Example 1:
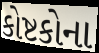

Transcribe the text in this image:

કોષ્ટકોના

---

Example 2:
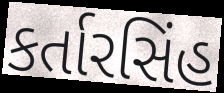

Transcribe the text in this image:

કર્તારસિંહ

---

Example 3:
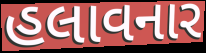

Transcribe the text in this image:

હલાવનાર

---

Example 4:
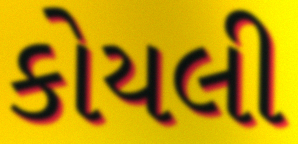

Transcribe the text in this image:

કોયલી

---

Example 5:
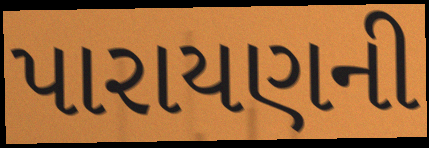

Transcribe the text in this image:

પારાયણની